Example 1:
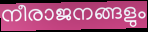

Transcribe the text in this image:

നീരാജനങ്ങളും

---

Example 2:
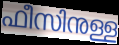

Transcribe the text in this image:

ഫീസിനുള്ള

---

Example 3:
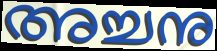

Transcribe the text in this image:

അച്ചനു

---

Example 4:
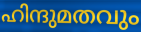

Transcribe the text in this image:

ഹിന്ദുമതവും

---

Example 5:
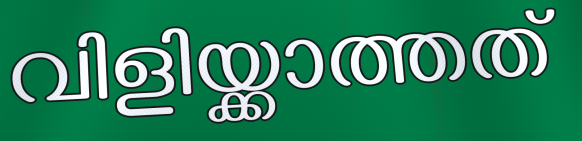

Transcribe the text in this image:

വിളിയ്ക്കാത്തത്